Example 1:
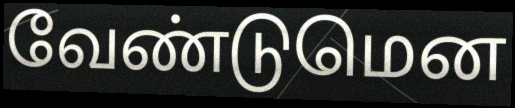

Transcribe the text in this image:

வேண்டுமென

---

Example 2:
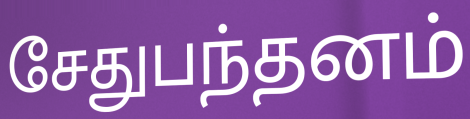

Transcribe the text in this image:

சேதுபந்தனம்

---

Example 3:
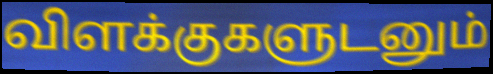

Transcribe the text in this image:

விளக்குகளுடனும்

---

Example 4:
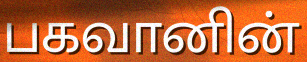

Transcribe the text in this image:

பகவானின்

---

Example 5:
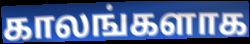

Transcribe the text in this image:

காலங்களாக